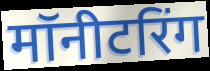
मॉनीटरिंग